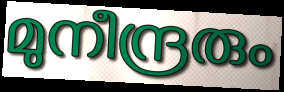
മുനീന്ദ്രരും